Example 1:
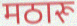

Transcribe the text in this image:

मठारू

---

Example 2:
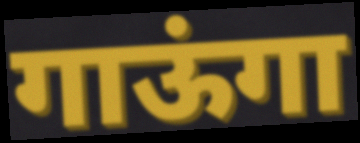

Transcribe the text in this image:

गाऊंगा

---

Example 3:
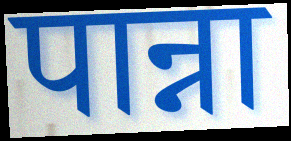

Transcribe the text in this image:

पान्ना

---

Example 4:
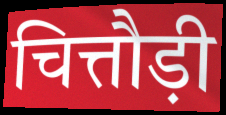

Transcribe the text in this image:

चित्तौड़ी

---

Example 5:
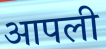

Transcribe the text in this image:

आपली